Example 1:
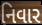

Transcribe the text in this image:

નિવાર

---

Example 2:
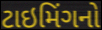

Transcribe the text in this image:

ટાઇમિંગનો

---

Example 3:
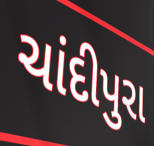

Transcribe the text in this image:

ચાંદીપુરા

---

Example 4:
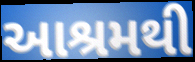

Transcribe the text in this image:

આશ્રમથી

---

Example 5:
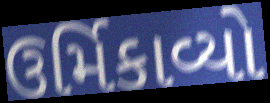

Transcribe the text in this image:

ઉર્મિકાવ્યો